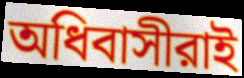
অধিবাসীরাই